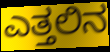
ಎತ್ತಲಿನ